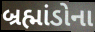
બ્રહ્માંડોના